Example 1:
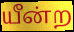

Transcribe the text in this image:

யீன்ற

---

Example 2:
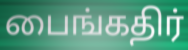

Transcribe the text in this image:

பைங்கதிர்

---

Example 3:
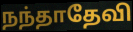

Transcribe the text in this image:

நந்தாதேவி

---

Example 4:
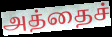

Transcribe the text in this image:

அத்தைச்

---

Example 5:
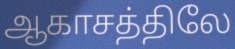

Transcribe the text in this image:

ஆகாசத்திலே